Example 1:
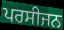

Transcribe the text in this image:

ਪਰਸੀਜਨ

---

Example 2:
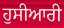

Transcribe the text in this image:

ਹੁਸੀਆਰੀ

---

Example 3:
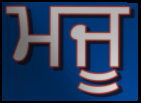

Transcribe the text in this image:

ਮਜੂ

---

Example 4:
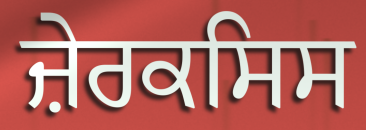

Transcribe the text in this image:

ਜ਼ੇਰਕਸਿਸ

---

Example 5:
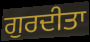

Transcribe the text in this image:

ਗੁਰਦੀਤਾ